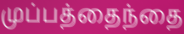
முப்பத்தைந்தை